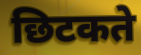
छिटकते